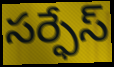
సర్ఫేస్